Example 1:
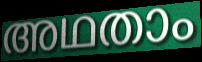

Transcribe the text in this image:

അഥതാം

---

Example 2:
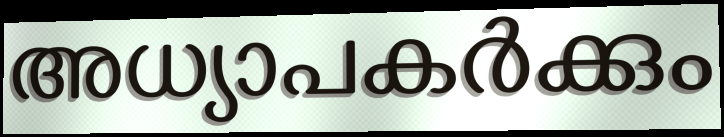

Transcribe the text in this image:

അധ്യാപകർക്കും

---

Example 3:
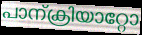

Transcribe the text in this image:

പാന്ക്രിയാറ്റോ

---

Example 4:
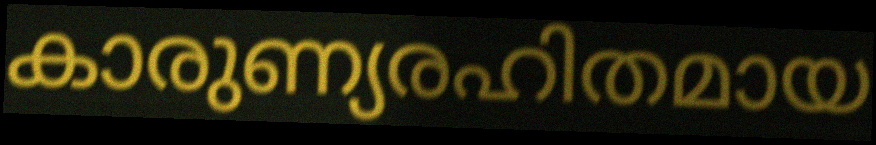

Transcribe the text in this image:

കാരുണ്യരഹിതമായ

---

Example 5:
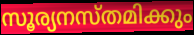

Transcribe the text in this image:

സൂര്യനസ്തമിക്കും